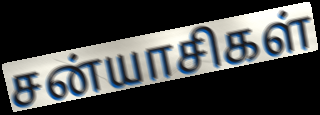
சன்யாசிகள்